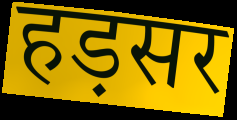
हड़सर